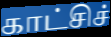
காட்சிச்